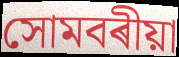
সোমবৰীয়া